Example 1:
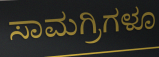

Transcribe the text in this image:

ಸಾಮಗ್ರಿಗಳೂ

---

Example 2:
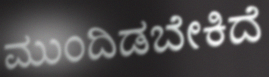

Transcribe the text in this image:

ಮುಂದಿಡಬೇಕಿದೆ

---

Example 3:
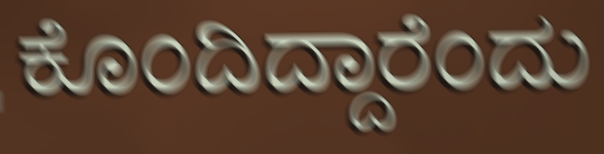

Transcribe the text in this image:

ಕೊಂದಿದ್ದಾರೆಂದು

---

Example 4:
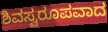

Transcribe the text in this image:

ಶಿವಸ್ವರೂಪವಾದ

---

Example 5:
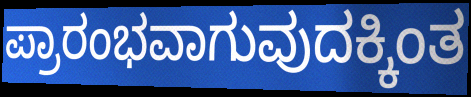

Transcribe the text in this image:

ಪ್ರಾರಂಭವಾಗುವುದಕ್ಕಿಂತ